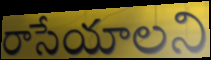
రాసేయాలని